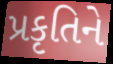
પ્રકૃતિને